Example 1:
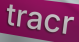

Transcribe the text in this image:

tracr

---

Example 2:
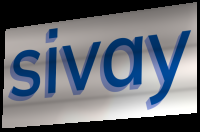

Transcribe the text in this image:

sivay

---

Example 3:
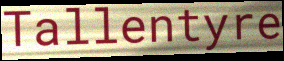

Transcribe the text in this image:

Tallentyre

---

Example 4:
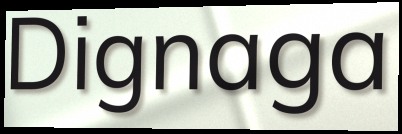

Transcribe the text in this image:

Dignaga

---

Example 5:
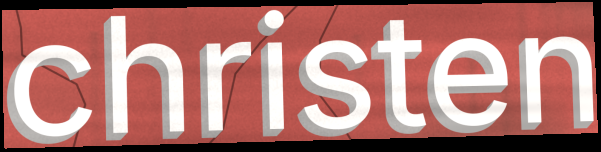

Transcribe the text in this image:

christen